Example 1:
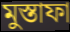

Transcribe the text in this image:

মুস্তাফা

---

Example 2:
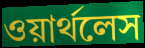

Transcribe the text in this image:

ওয়ার্থলেস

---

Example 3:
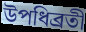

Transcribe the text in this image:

উপধিব্রতী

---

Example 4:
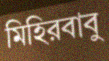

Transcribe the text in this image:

মিহিরবাবু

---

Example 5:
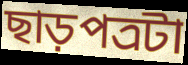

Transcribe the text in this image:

ছাড়পত্রটা